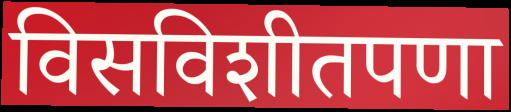
विसविशीतपणा